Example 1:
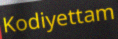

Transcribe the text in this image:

Kodiyettam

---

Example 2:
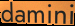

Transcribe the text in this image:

damini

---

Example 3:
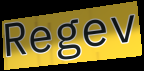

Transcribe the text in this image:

Regev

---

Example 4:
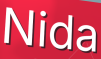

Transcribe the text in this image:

Nida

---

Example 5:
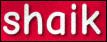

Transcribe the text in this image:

shaik